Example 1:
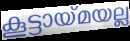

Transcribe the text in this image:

കൂട്ടായ്മയല്ല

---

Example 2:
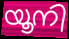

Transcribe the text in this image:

യൂനി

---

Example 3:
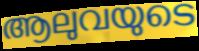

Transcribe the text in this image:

ആലുവയുടെ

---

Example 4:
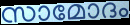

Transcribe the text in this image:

സാമോദം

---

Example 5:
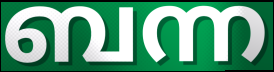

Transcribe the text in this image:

ബന്ന